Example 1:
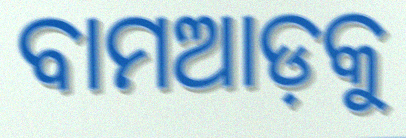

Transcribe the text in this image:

ବାମଆଡ଼କୁ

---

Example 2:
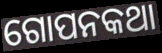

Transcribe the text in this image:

ଗୋପନକଥା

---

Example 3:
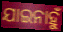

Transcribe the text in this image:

ଯାଇନାହୁଁ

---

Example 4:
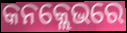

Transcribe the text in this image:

କନକ୍ଲେଭରେ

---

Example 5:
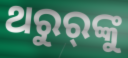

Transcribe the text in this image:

ଥରୁର୍‌ଙ୍କୁ